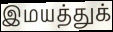
இமயத்துக்